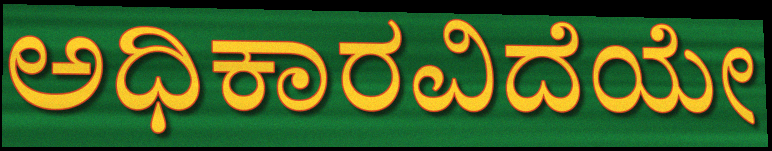
ಅಧಿಕಾರವಿದೆಯೇ